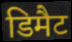
डिमैट